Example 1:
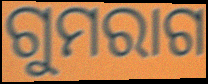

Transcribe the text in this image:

ଗୁମରାଗ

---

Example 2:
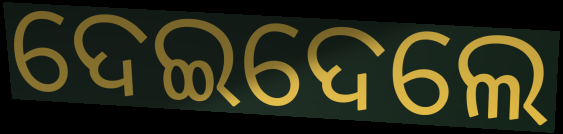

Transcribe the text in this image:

ଦେଇଦେଲେ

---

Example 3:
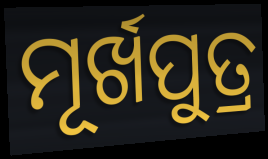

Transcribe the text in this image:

ମୂର୍ଖପୁତ୍ର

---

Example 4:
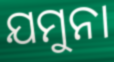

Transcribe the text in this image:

ଯମୁନା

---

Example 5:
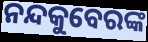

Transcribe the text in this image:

ନନ୍ଦକୁବେରଙ୍କ